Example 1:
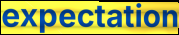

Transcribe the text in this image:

expectation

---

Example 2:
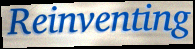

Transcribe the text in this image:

Reinventing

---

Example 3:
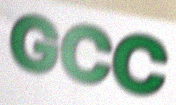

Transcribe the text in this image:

GCC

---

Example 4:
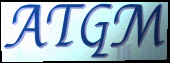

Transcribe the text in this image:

ATGM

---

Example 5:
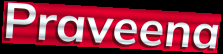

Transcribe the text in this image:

Praveena